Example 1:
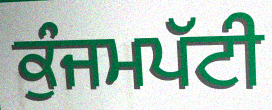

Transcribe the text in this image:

ਕੁੰਜਮਪੱਟੀ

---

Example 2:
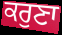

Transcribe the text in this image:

ਕਰੁਣਾ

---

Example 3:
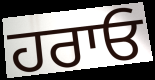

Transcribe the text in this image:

ਹਰਾਓ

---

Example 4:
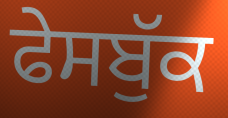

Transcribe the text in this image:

ਫੇਸਬੁੱਕ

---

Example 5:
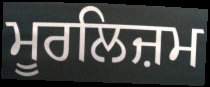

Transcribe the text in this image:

ਮੂਰਲਿਜ਼ਮ